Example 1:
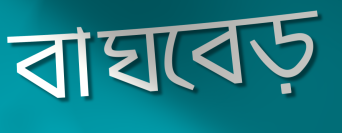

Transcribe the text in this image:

বাঘবেড়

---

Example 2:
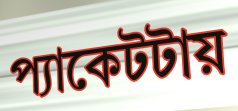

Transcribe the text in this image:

প্যাকেটটায়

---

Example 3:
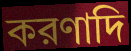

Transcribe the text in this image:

করণাদি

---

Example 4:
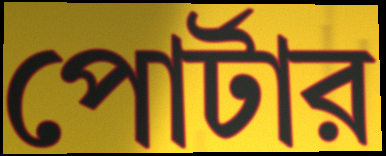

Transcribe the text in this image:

পোর্টার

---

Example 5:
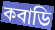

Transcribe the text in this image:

কবাডি